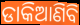
ଡାକିଆଣିବି